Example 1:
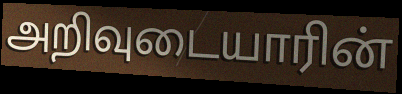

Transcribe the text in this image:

அறிவுடையாரின்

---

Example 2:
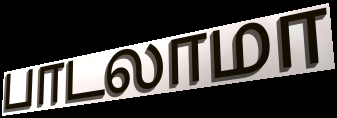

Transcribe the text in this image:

பாடலாமா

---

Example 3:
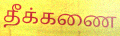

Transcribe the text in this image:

தீக்கணை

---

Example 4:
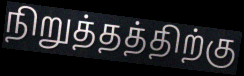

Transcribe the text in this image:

நிறுத்தத்திற்கு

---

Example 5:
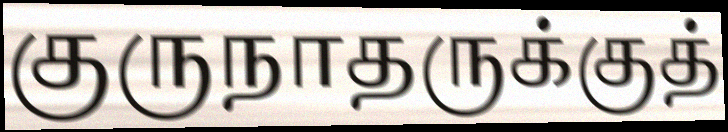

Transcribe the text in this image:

குருநாதருக்குத்